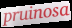
pruinosa